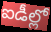
ఐడీల్లో